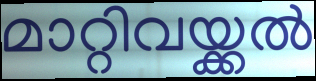
മാറ്റിവയ്ക്കൽ